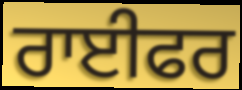
ਰਾਈਫਰ